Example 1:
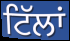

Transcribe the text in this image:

ਟਿੱਲਾਂ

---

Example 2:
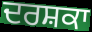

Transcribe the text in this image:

ਦਰਸ਼ਕਾ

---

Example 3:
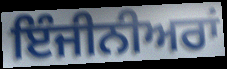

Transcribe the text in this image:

ਇੰਜੀਨੀਅਰਾਂ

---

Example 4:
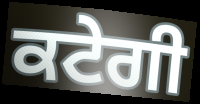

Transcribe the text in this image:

ਕਟੇਗੀ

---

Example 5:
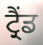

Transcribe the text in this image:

ਟ੍ਰੈਂਡ